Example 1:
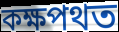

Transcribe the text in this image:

কক্ষপথত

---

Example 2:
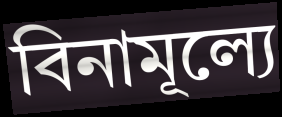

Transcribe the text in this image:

বিনামূল্যে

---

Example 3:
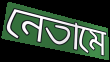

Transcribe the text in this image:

নেতামে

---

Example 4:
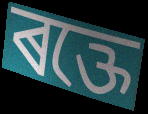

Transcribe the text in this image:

ৰক্তে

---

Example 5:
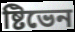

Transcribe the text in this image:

ষ্টিভেন